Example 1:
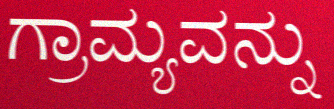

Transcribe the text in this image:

ಗ್ರಾಮ್ಯವನ್ನು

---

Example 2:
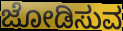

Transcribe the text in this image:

ಜೋಡಿಸುವ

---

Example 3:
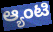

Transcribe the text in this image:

ಆ್ಯಂಟಿ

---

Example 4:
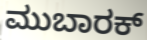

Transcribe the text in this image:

ಮುಬಾರಕ್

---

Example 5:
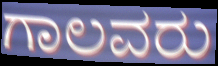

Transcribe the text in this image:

ಗಾಲವರು